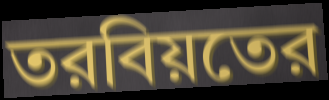
তরবিয়তের